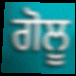
ਗੋਲੂ